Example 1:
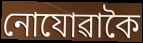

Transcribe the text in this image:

নোযোৱাকৈ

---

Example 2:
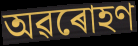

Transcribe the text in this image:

অৱৰোহণ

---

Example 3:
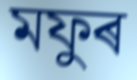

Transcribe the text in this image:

মফুৰ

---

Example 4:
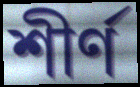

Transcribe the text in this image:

শীৰ্ণ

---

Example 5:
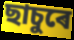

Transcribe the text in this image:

ছাচুৰে